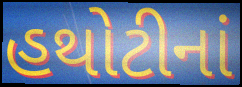
હથોટીનાં